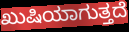
ಖುಷಿಯಾಗುತ್ತದೆ